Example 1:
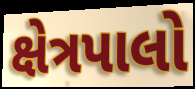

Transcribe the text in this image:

ક્ષેત્રપાલો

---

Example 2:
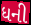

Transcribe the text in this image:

ધની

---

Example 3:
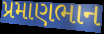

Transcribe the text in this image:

પ્રમાણભાન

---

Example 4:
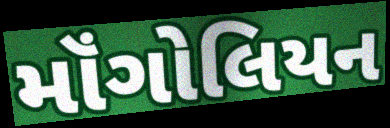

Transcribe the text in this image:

મૉંગોલિયન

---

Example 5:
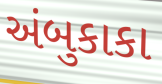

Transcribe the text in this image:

અંબુકાકા